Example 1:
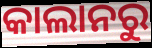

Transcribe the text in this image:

କାଲାନରୁ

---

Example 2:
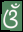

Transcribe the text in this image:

ଓଁ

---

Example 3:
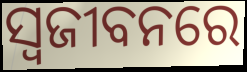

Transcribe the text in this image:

ସ୍ଵଜୀବନରେ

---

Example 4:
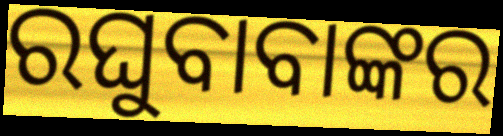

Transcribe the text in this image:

ରଘୁବାବାଙ୍କର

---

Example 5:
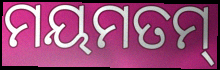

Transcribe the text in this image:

ମୟମତମ୍